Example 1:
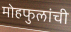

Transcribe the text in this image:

मोहफुलांची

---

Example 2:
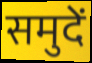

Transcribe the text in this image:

समुदें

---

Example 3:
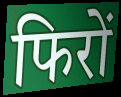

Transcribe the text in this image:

फिरों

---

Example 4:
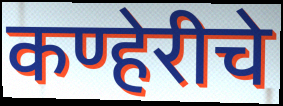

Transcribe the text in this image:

कण्हेरीचे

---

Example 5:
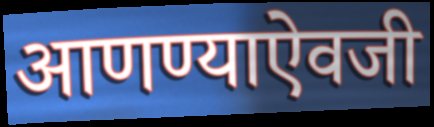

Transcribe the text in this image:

आणण्याऐवजी